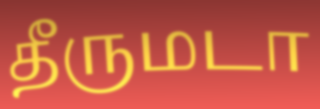
தீருமடா